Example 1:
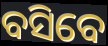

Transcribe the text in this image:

ବସିବେ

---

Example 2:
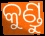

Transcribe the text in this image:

କୁଣ୍ଡୁ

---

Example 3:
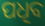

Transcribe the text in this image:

ପଧିବ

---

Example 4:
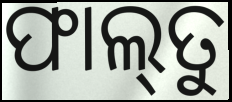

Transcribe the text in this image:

ଫାଲ୍‌ତୁ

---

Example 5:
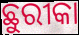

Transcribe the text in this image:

ଛୁରୀକା